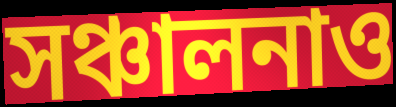
সঞ্চালনাও